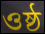
ওষ্ঠ